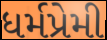
ધર્મપ્રેમી